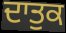
ਦਾਤੁਕ